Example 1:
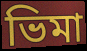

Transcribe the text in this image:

ভিমা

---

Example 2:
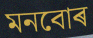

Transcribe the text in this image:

মনবোৰ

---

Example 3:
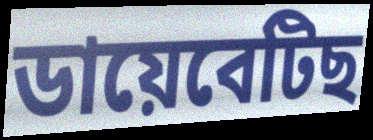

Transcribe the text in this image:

ডায়েবেটিছ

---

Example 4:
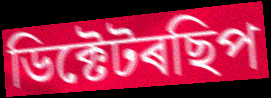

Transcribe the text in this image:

ডিক্টেটৰছিপ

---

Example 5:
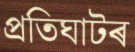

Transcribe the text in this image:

প্ৰতিঘাটৰ